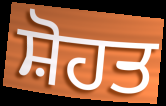
ਸ਼ੋਹਤ